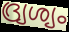
ദ്ര്യശ്യം